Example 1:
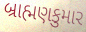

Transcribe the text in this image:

બ્રાહ્મણકુમાર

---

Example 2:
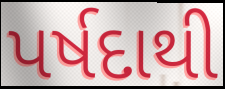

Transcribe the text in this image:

પર્ષદાથી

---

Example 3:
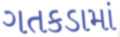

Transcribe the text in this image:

ગતકડામાં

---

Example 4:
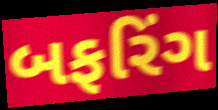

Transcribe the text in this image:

બફરિંગ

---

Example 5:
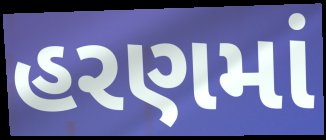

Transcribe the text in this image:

હરણમાં